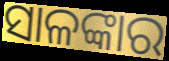
ସାଳଙ୍କାର